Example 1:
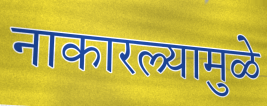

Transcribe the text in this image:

नाकारल्यामुळे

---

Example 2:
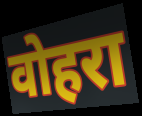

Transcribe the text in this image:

वोहरा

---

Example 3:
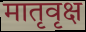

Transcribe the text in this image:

मातृवृक्ष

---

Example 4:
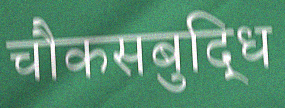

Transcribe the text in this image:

चौकसबुद्धि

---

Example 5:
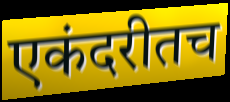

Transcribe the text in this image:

एकंदरीतच